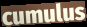
cumulus